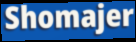
Shomajer